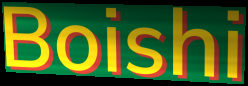
Boishi